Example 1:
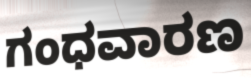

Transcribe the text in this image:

ಗಂಧವಾರಣ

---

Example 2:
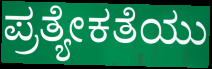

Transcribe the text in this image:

ಪ್ರತ್ಯೇಕತೆಯು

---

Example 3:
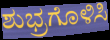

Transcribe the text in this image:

ಶುಭ್ರಗೊಳಿಸಿ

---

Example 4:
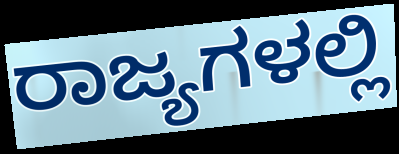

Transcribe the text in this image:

ರಾಜ್ಯಗಳಲ್ಲಿ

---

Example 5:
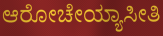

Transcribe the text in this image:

ಆರೋಚೇಯ್ಯಾಸೀತಿ